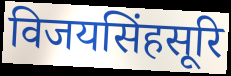
विजयसिंहसूरि